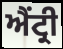
ਐਂਟ੍ਰੀ